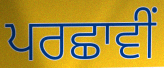
ਪਰਛਾਵੀਂ